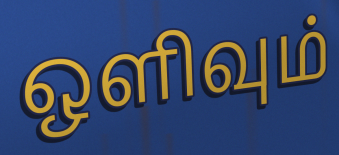
ஒளிவும்